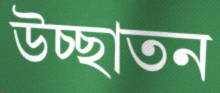
উচ্ছাতন